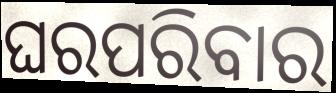
ଘରପରିବାର